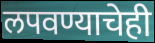
लपवण्याचेही